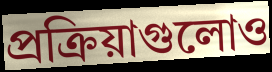
প্রক্রিয়াগুলোও